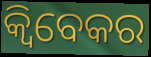
କ୍ୱିବେକର